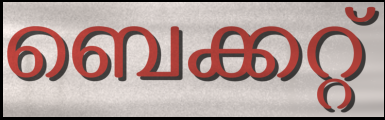
ബെക്കറ്റ്